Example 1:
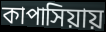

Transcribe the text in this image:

কাপাসিয়ায়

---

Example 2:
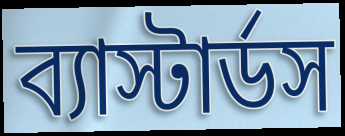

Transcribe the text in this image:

ব্যাস্টার্ডস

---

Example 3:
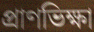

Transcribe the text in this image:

প্রাণভিক্ষা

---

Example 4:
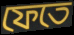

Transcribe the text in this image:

ফেতে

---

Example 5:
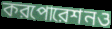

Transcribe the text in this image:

করপোরেশনও